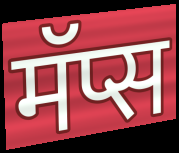
मॅप्स